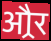
औ्रर